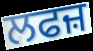
ਲਫਜ਼